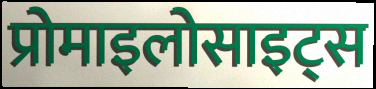
प्रोमाइलोसाइट्स